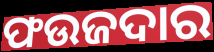
ଫଉଜଦାର